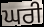
ਘਰੀ